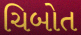
ચિબોત